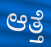
ಆತ್ತೆ